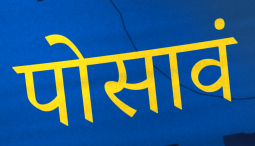
पोसावं